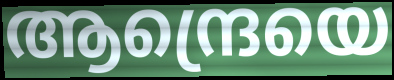
ആന്ദ്രെയെ